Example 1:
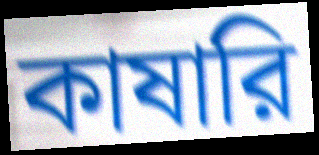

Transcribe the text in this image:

কাষারি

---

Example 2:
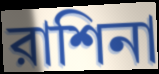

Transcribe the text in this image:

রাশিনা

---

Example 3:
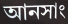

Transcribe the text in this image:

আনসাং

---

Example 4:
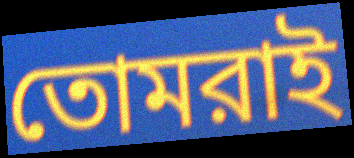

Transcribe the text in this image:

তোমরাই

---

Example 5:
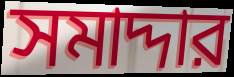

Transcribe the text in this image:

সমাদ্দার